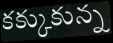
కక్కుకున్న